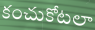
కంచుకోటలా